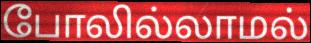
போலில்லாமல்